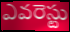
ఎవరెస్టు